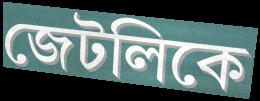
জেটলিকে